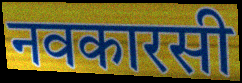
नवकारसी